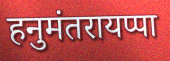
हनुमंतरायप्पा